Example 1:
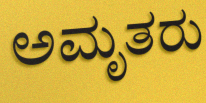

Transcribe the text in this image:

ಅಮೃತರು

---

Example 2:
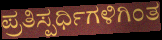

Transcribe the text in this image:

ಪ್ರತಿಸ್ಪರ್ಧಿಗಳಿಗಿಂತ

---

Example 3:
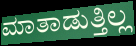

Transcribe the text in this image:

ಮಾತಾಡುತ್ತಿಲ್ಲ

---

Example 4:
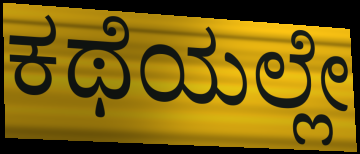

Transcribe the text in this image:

ಕಥೆಯಲ್ಲೇ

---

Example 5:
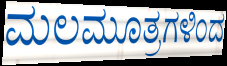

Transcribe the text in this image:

ಮಲಮೂತ್ರಗಳಿಂದ